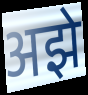
अझे